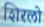
शिरलो